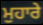
ਮੁਹਾਰੇ